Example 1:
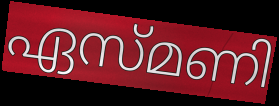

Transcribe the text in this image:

ഏസ്മണി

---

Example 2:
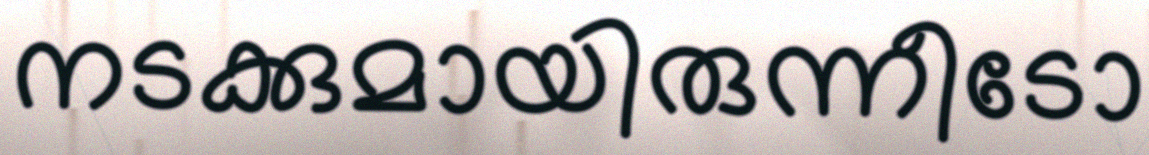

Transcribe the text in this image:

നടക്കുമായിരുന്നീടോ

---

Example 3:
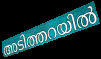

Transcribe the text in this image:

അടിത്തറയിൽ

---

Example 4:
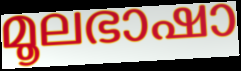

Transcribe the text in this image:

മൂലഭാഷാ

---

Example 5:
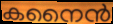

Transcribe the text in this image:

കനൈൻ